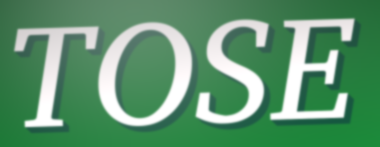
TOSE